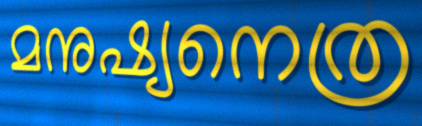
മനുഷ്യനെത്ര